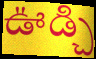
ఊడ్చి